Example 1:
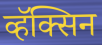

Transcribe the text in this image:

व्हॅक्सिन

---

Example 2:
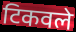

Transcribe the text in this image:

टिकवले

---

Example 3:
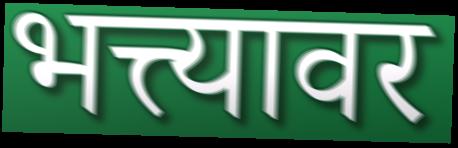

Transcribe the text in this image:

भत्त्यावर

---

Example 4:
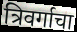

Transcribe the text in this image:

त्रिवर्गाचा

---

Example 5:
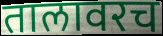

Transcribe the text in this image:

तालावरच